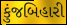
કુંજબિહારી